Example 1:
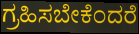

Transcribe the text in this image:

ಗ್ರಹಿಸಬೇಕೆಂದರೆ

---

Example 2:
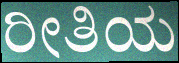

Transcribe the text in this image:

ರೀತಿಯ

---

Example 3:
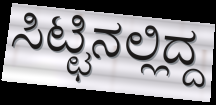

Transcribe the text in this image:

ಸಿಟ್ಟಿನಲ್ಲಿದ್ದ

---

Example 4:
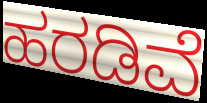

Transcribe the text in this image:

ಹರಡಿವೆ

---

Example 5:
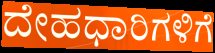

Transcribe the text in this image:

ದೇಹಧಾರಿಗಳಿಗೆ